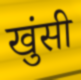
खुंसी